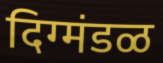
दिग्मंडळ